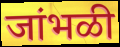
जांभळी